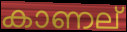
കാണല്